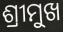
ଶ୍ରୀମୁଖ